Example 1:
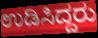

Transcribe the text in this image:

ಉಡಿಸಿದ್ದರು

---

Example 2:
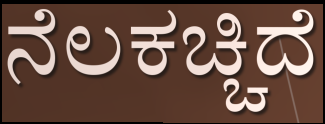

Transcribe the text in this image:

ನೆಲಕಚ್ಚಿದೆ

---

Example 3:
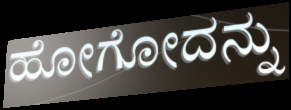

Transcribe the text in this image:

ಹೋಗೋದನ್ನು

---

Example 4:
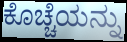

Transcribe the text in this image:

ಕೊಚ್ಚೆಯನ್ನು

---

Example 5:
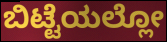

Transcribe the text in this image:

ಬಿಟ್ಟೆಯಲ್ಲೋ